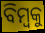
ବିମ୍ବକୁ